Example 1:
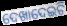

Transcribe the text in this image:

ଦେଖାଦେଇଚି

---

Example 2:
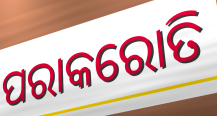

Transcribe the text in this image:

ପରାକରୋତି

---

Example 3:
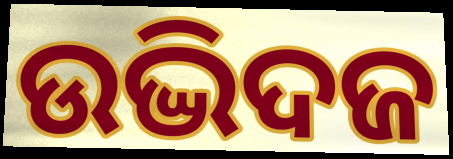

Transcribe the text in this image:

ଉଦ୍ଭିଦଜ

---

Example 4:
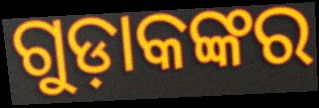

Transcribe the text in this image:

ଗୁଡ଼ାକଙ୍କର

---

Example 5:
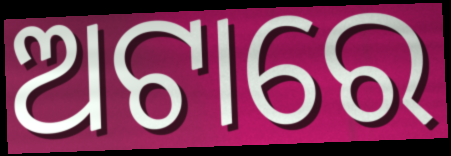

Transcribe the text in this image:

ଅଟାରେ